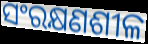
ସଂରକ୍ଷଣଶୀଳ